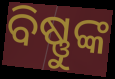
ବିଷ୍ଣୁଙ୍କ